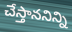
చేస్తాననిన్ని